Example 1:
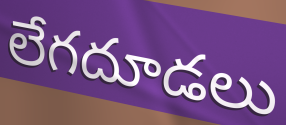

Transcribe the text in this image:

లేగదూడలు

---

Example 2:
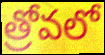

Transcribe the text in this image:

త్రోవలో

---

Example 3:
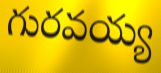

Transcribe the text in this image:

గురవయ్య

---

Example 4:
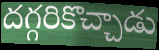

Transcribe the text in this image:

దగ్గరికొచ్చాడు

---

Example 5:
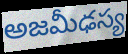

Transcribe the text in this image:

అజమీఢస్య